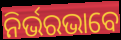
ନିର୍ଭରଭାବେ